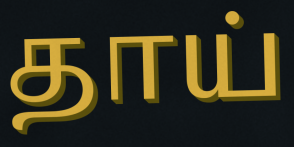
தாய்